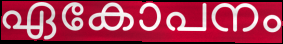
ഏകോപനം